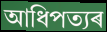
আধিপত্যৰ